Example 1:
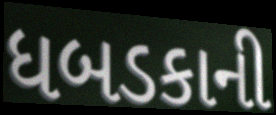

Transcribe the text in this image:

ધબડકાની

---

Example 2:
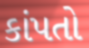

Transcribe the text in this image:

કાંપતો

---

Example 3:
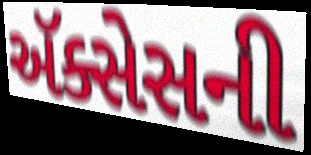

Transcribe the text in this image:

ઍક્સેસની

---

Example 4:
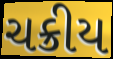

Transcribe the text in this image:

ચક્રીય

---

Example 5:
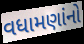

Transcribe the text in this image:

વધામણાંનો